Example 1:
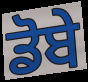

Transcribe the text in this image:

ਡੋਬੇ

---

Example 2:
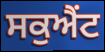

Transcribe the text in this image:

ਸਕੁਐਂਟ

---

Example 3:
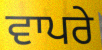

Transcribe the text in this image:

ਵਾਪਰੇ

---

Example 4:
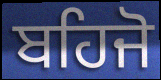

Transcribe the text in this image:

ਬਹਿਜੋ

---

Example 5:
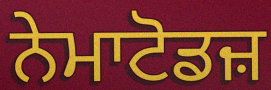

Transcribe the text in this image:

ਨੇਮਾਟੋਡਜ਼